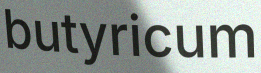
butyricum